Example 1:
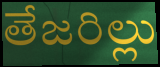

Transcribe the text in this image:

తేజరిల్లు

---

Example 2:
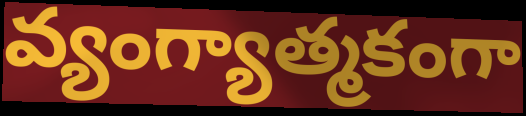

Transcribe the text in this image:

వ్యంగ్యాత్మకంగా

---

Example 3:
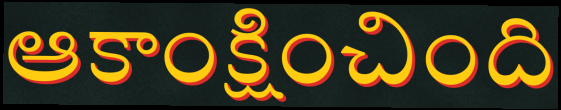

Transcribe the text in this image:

ఆకాంక్షించింది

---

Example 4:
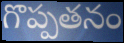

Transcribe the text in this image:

గొప్పతనం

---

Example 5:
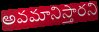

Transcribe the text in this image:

అవమానిస్తారని